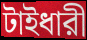
টাইধারী